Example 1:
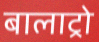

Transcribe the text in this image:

बालाट्रो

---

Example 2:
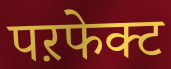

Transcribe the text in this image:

पऱफेक्ट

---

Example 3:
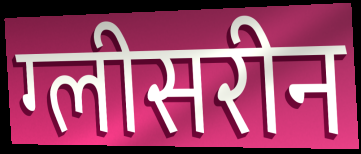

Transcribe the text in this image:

ग्लीसरीन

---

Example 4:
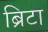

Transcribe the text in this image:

ब्रिटा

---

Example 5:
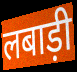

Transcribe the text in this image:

लबाड़ी